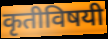
कृतीविषयी